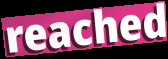
reached